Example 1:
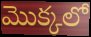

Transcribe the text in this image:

మొక్కలో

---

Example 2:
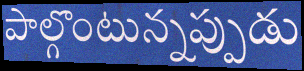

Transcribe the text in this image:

పాల్గొంటున్నప్పుడు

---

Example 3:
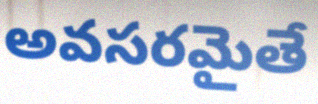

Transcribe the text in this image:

అవసరమైతే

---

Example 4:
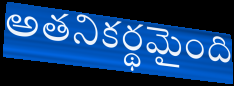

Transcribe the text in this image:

అతనికర్థమైంది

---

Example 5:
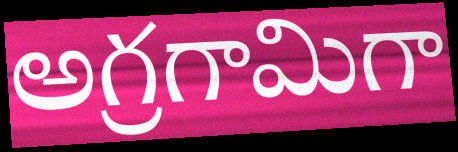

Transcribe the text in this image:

అగ్రగామిగా